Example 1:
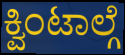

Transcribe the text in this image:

ಕ್ವಿಂಟಾಲ್ಗೆ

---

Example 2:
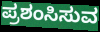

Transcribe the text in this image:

ಪ್ರಶಂಸಿಸುವ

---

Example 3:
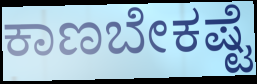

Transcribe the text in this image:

ಕಾಣಬೇಕಷ್ಟೆ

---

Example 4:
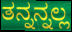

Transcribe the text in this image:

ತನ್ನನ್ನಲ್ಲ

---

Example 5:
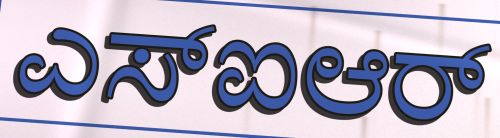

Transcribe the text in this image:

ಎಸ್ಐಆರ್